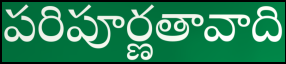
పరిపూర్ణతావాది